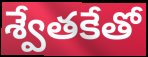
శ్వేతకేతో